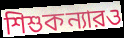
শিশুকন্যারও